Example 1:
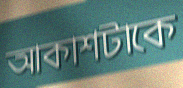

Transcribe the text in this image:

আকাশটাকে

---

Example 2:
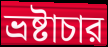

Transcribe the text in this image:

ভ্রষ্টাচার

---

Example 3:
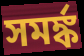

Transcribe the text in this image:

সমর্ঙ্ক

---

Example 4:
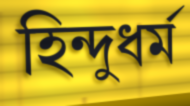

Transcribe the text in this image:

হিন্দুধর্ম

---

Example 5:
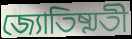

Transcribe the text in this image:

জ্যোতিষ্মতী